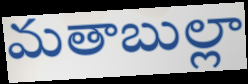
మతాబుల్లా